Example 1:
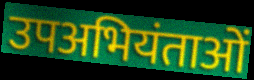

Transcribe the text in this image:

उपअभियंताओं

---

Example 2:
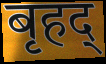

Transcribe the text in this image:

बृहद्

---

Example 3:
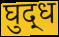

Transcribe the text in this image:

घुद्ध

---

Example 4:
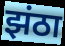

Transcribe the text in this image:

झंठा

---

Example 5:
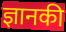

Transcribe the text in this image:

ज्ञानकी